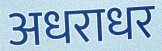
अधराधर